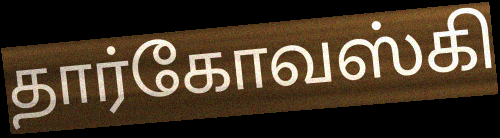
தார்கோவஸ்கி